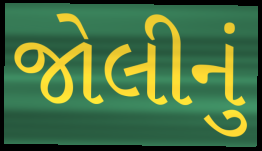
જોલીનું